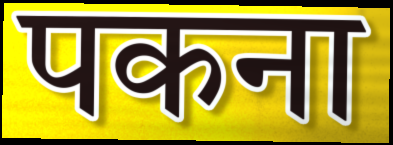
पकना